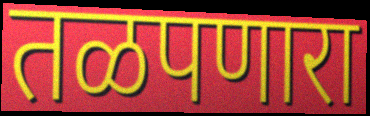
तळपणारा